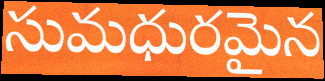
సుమధురమైన